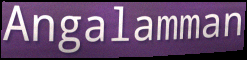
Angalamman